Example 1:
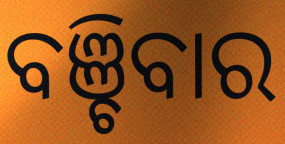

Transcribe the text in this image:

ବଞ୍ଚିବାର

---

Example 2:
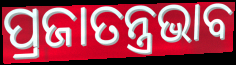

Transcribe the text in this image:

ପ୍ରଜାତନ୍ତ୍ରଭାବ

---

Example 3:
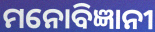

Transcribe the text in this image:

ମନୋବିଜ୍ଞାନୀ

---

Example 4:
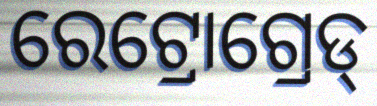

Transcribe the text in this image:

ରେଟ୍ରୋଗ୍ରେଡ୍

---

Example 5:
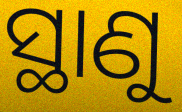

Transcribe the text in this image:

ସ୍ଥାଣୁ